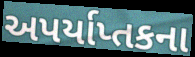
અપર્યાપ્તકના